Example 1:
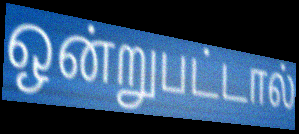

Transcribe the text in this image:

ஒன்றுபட்டால்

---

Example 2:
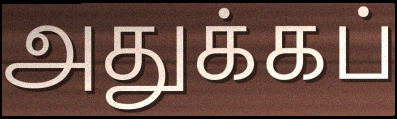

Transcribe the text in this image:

அதுக்கப்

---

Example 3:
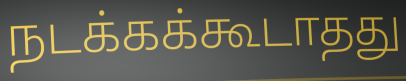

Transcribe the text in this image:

நடக்கக்கூடாதது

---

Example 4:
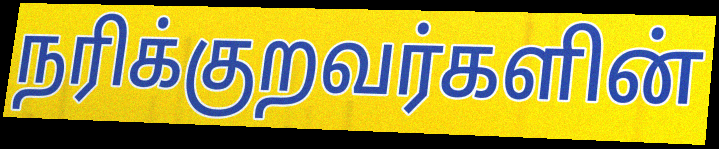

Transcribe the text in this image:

நரிக்குறவர்களின்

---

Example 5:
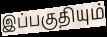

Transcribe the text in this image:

இப்பகுதியும்